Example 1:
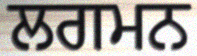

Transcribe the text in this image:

ਲਗਮਨ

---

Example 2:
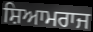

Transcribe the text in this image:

ਸ਼ਿਆਮਰਾਜ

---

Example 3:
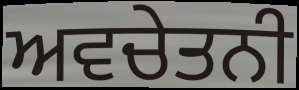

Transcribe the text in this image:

ਅਵਚੇਤਨੀ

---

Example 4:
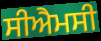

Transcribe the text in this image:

ਸੀਐਮਸੀ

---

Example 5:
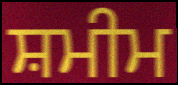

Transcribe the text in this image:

ਸ਼ਮੀਮ